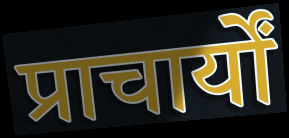
प्राचार्यों